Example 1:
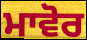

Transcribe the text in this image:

ਮਾਵੋਰ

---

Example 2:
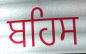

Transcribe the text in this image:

ਬਹਿਸ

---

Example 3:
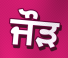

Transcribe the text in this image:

ਜੌੜ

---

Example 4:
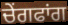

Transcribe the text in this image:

ਚੇਂਗਫਾਂਗ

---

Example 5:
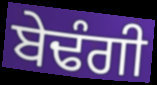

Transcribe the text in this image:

ਬੇਢੰਗੀ